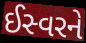
ઈસ્વરને